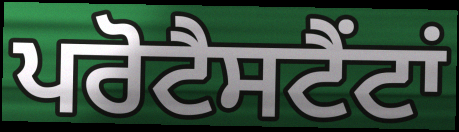
ਪਰੋਟੈਸਟੈਂਟਾਂ